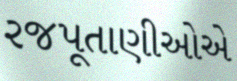
રજપૂતાણીઓએ